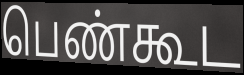
பெண்கூட